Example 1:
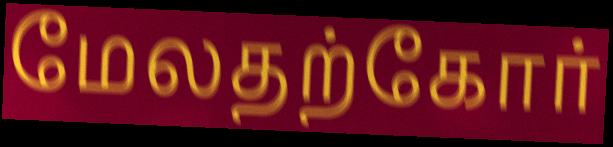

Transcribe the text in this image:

மேலதற்கோர்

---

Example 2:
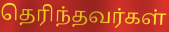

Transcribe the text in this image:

தெரிந்தவர்கள்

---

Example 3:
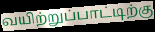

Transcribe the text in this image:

வயிற்றுப்பாட்டிற்கு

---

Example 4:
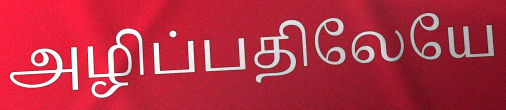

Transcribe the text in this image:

அழிப்பதிலேயே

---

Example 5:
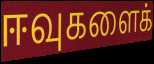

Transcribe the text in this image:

ஈவுகளைக்